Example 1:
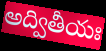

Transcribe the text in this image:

అద్వితీయః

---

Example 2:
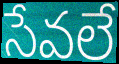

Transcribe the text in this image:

సేవలే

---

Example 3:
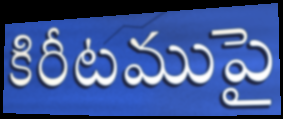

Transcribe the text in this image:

కిరీటముపై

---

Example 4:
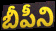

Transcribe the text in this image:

బీపీని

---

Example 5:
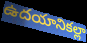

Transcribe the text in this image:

ఉదయానికల్లా